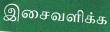
இசைவளிக்க